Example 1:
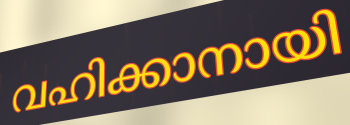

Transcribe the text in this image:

വഹിക്കാനായി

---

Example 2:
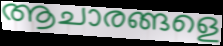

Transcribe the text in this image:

ആചാരങ്ങളെ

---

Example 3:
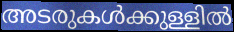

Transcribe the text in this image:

അടരുകൾക്കുള്ളിൽ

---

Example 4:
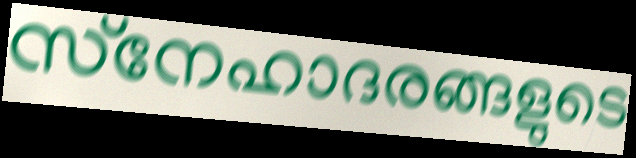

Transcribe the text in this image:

സ്‌നേഹാദരങ്ങളുടെ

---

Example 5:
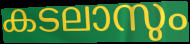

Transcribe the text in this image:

കടലാസും